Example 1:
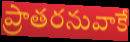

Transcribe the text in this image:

ప్రాతరనువాకే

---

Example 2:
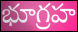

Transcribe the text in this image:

భూగ్రహ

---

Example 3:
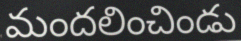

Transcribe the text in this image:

మందలించిండు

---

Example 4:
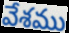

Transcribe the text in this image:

వేశము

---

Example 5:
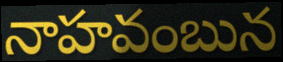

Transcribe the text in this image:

నాహవంబున